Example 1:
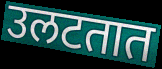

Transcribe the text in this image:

उलटतात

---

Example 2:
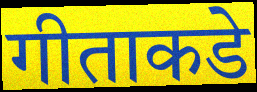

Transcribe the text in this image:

गीताकडे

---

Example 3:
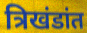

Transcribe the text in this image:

त्रिखंडांत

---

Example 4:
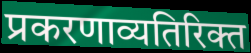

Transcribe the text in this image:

प्रकरणाव्यतिरिक्त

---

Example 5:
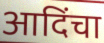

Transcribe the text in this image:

आदिंचा